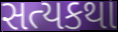
સત્યકથા